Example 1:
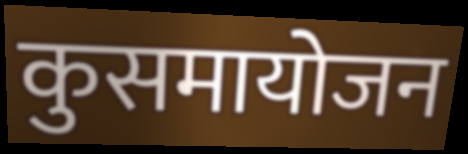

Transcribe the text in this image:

कुसमायोजन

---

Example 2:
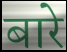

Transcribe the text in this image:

बारे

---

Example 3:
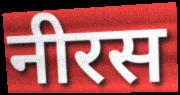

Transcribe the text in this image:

नीरस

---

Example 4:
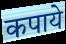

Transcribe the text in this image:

कपाये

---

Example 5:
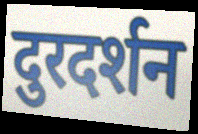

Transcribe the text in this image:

दुरदर्शन